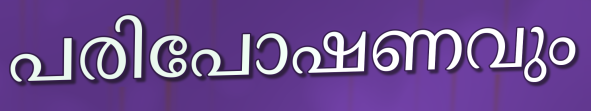
പരിപോഷണവും